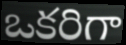
ఒకరిగా